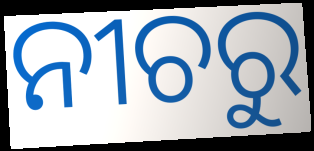
ନୀଚରୁ